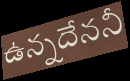
ఉన్నదేననీ